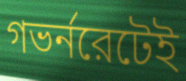
গভর্নরেটেই